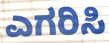
ಎಗರಿಸಿ